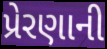
પ્રેરણાની